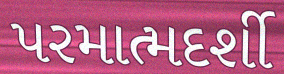
પરમાત્મદર્શી